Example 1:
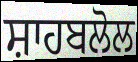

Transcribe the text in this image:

ਸ਼ਾਹਬਲੋਲ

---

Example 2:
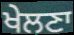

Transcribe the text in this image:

ਖੇਲਣਾ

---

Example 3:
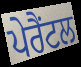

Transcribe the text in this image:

ਪੇਰੈਂਟਲ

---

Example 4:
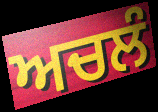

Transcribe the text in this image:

ਅਚਲੰ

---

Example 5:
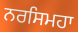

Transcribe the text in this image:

ਨਰਸਿਮਹਾ